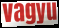
vagyu